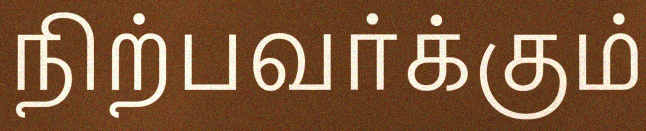
நிற்பவர்க்கும்